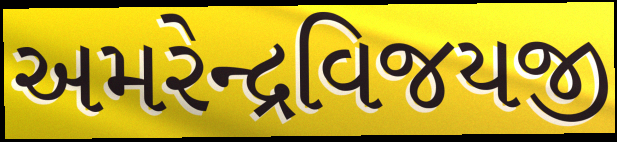
અમરેન્દ્રવિજયજી